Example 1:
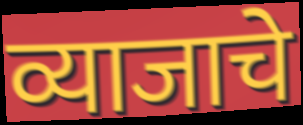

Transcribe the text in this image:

व्याजाचे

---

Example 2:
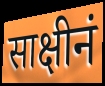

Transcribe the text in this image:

साक्षीनं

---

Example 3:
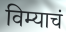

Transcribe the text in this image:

विम्याचं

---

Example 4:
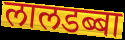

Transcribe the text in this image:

लालडब्बा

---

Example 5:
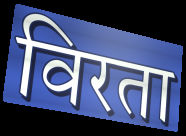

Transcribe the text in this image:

विरता